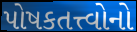
પોષકતત્ત્વોનો